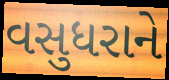
વસુધરાને